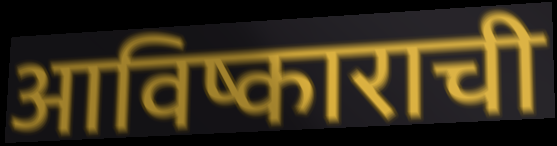
आविष्काराची